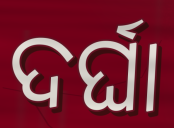
ଦର୍ଘା